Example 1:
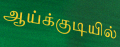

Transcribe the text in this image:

ஆய்க்குடியில்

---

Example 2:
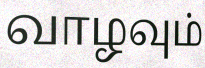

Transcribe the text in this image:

வாழவும்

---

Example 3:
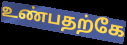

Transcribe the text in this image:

உண்பதற்கே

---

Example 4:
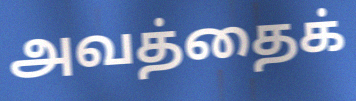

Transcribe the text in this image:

அவத்தைக்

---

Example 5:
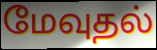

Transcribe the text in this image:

மேவுதல்